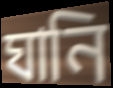
ঘানি